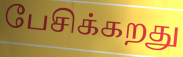
பேசிக்கறது